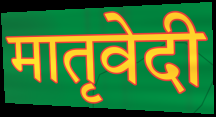
मातृवेदी